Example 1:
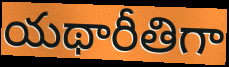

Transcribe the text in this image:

యథారీతిగా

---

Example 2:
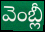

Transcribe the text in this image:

వెంబ్లీ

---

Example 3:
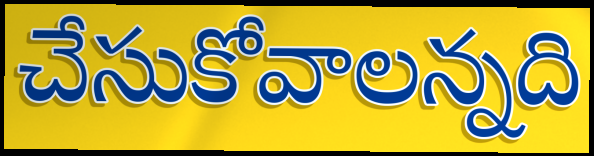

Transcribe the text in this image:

చేసుకోవాలన్నది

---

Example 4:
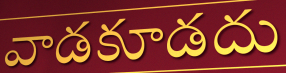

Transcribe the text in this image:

వాడకూడదు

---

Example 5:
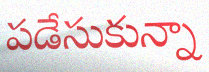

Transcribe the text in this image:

పడేసుకున్నా